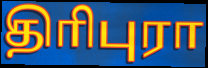
திரிபுரா